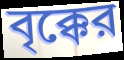
বৃক্কের